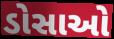
ડોસાઓ